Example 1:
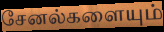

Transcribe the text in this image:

சேனல்களையும்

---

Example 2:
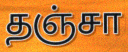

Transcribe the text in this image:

தஞ்சா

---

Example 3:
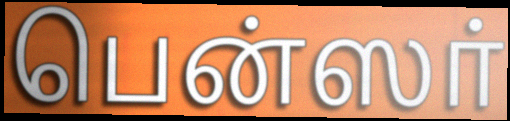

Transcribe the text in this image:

பென்ஸர்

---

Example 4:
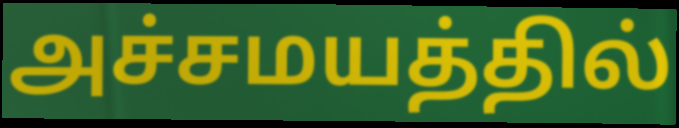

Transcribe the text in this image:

அச்சமயத்தில்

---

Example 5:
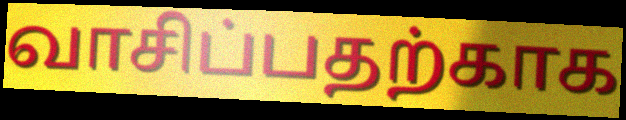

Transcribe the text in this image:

வாசிப்பதற்காக